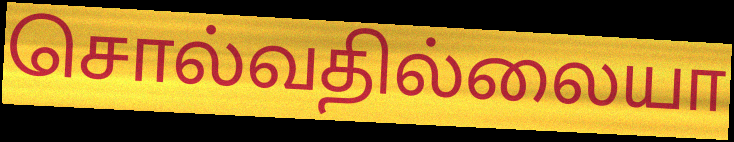
சொல்வதில்லையா